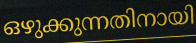
ഒഴുക്കുന്നതിനായി